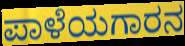
ಪಾಳೆಯಗಾರನ